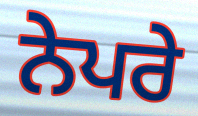
ਨੇਪਰੇ